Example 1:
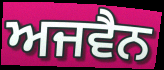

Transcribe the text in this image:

ਅਜਵੈਨ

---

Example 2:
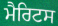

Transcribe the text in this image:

ਮੈਰਿਟਸ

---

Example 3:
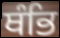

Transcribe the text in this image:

ਥੰਭਿ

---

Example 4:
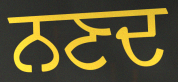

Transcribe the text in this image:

ਨਣਦ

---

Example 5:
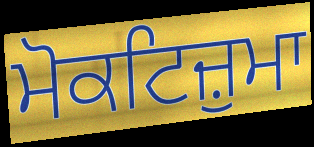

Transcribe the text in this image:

ਮੋਕਟਿਜ਼ੁਮਾ